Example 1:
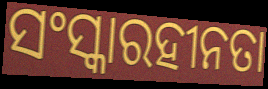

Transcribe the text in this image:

ସଂସ୍କାରହୀନତା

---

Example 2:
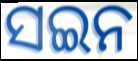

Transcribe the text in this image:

ସଇନ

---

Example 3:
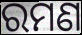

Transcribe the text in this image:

ରମଣ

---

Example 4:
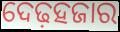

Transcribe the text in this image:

ଦେଢ଼ହଜାର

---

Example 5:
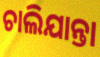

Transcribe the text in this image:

ଚାଲିଯାନ୍ତା